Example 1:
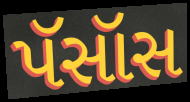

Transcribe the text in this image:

પૅસૉસ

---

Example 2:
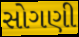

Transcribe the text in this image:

સોગણી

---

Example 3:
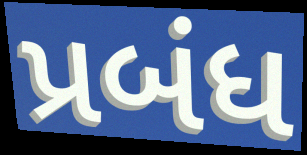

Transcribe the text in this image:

પ્રબંધ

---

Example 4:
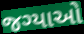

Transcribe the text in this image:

જગ્યાઓ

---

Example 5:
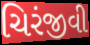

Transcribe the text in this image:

ચિરંજીવી